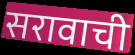
सरावाची